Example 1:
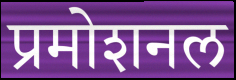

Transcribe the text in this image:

प्रमोशनल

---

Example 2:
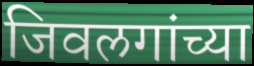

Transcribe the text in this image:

जिवलगांच्या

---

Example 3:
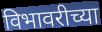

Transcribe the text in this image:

विभावरीच्या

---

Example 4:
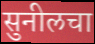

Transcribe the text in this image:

सुनीलचा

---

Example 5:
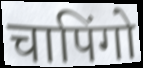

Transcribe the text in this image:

चापिंगो